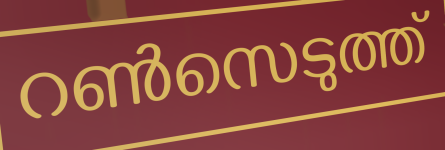
റൺസെടുത്ത്